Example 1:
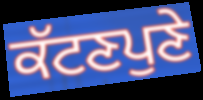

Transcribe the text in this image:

ਕੱਟਣਪੁਣੇ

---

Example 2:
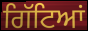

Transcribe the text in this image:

ਗਿੱਟਿਆਂ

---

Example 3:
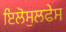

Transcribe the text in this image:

ਇਲੋਸੁਲਫੇਸ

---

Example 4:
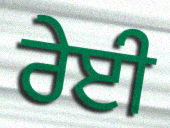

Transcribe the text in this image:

ਰੇਈ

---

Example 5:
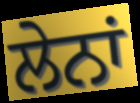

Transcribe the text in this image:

ਲੇਨਾਂ